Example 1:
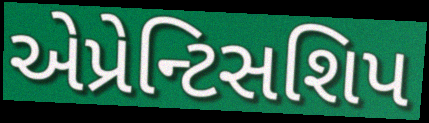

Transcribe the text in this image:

એપ્રેન્ટિસશિપ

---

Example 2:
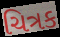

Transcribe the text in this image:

ચિત્રક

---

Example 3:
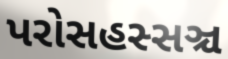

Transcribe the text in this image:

પરોસહસ્સઞ્ચ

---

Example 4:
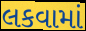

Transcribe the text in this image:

લકવામાં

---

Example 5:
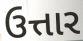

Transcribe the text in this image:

ઉત્તાર